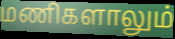
மணிகளாலும்